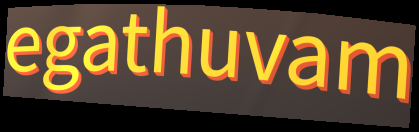
egathuvam